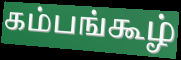
கம்பங்கூழ்